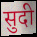
सुदी